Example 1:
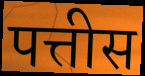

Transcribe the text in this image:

पत्तीस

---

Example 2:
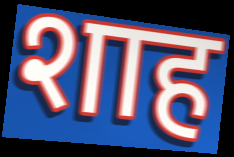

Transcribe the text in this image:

शाह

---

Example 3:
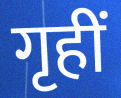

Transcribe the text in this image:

गृहीं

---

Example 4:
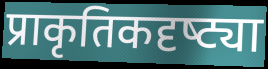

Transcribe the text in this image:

प्राकृतिकदृष्ट्या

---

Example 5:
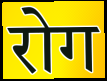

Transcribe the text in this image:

रोग